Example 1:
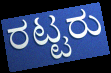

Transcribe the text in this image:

ರಟ್ಟರು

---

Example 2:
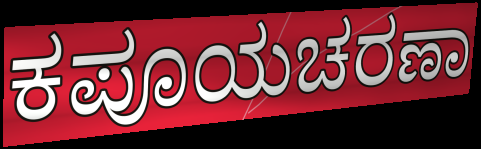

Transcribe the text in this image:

ಕಪೂಯಚರಣಾ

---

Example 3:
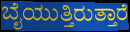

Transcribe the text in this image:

ಬೈಯುತ್ತಿರುತ್ತಾರೆ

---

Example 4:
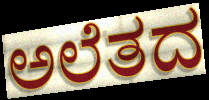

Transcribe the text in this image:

ಅಲೆತದ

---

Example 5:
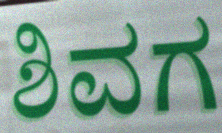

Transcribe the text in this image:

ಶಿವಗ